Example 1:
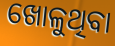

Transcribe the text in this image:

ଖୋଳୁଥିବା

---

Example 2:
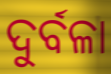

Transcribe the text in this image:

ଦୁର୍ବଳା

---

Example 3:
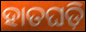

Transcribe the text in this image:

ହାତଘଡ଼ି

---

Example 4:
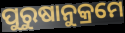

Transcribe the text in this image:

ପୁରୁଷାନୁକ୍ରମେ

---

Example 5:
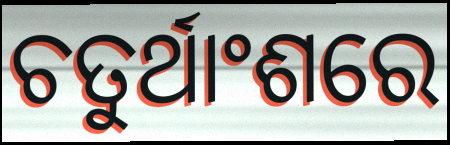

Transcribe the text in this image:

ଚତୁର୍ଥାଂଶରେ